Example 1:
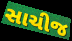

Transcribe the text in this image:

સાચીજ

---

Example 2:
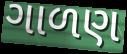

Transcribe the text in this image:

ગાળણ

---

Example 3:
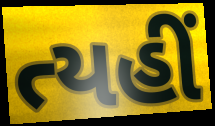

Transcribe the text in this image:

ત્યહીં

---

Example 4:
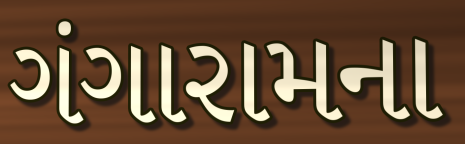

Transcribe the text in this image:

ગંગારામના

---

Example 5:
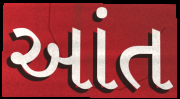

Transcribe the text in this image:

આંત